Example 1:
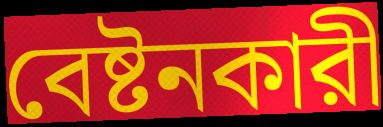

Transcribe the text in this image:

বেষ্টনকারী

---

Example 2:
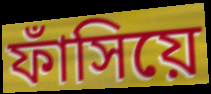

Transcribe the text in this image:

ফাঁসিয়ে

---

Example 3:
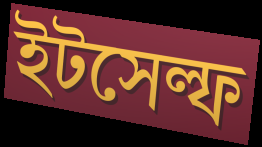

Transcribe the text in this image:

ইটসেল্ফ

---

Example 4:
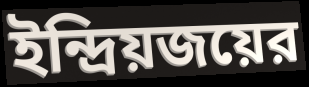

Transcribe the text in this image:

ইন্দ্রিয়জয়ের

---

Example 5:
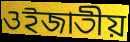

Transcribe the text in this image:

ওইজাতীয়